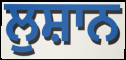
ਲੁਸ਼ਾਨ